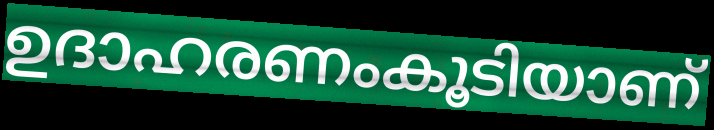
ഉദാഹരണംകൂടിയാണ്